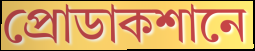
প্রোডাকশানে